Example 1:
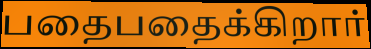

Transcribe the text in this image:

பதைபதைக்கிறார்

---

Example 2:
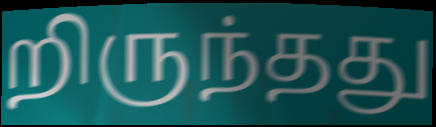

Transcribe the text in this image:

றிருந்தது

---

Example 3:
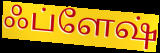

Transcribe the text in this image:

ஃப்ளேஷ்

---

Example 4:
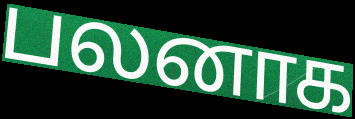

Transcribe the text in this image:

பலனாக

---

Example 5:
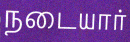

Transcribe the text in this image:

நடையார்